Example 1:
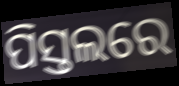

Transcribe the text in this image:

ପିସ୍ତଲରେ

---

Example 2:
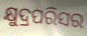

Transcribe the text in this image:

କ୍ଷୁଦ୍ରପରିସର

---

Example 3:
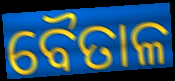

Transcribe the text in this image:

ବୈତାଳ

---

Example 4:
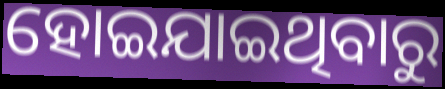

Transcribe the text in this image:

ହୋଇଯାଇଥିବାରୁ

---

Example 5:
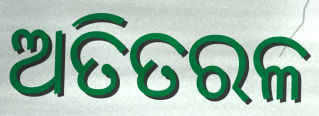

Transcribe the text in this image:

ଅତିତରଳ